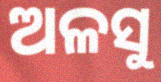
ଅଳସୁ